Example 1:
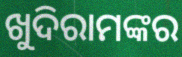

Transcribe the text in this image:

ଖୁଦିରାମଙ୍କର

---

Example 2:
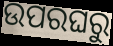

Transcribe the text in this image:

ଉପରଘରୁ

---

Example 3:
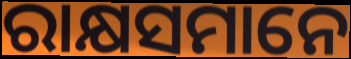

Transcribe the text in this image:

ରାକ୍ଷସମାନେ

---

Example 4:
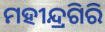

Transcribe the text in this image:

ମହୀନ୍ଦ୍ରଗିରି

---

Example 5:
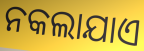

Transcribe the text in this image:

ନକଲାଯାଏ